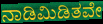
ನಾಡಿಮಿಡಿತವೇ